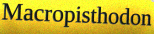
Macropisthodon